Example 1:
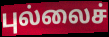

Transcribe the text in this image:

புல்லைச்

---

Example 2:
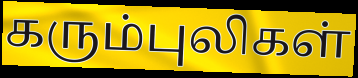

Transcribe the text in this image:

கரும்புலிகள்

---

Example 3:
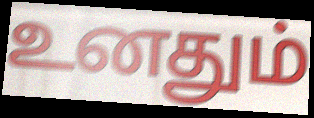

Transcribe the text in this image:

உனதும்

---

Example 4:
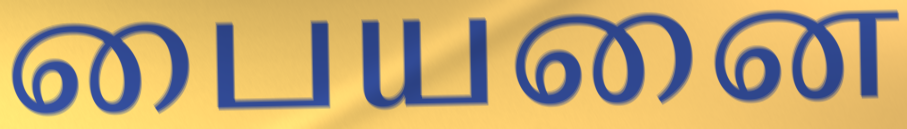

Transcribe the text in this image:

பையனை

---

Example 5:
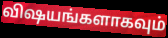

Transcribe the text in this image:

விஷயங்களாகவும்